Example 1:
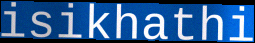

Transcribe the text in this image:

isikhathi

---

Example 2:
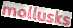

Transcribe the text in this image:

mollusks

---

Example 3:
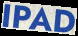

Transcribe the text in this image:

IPAD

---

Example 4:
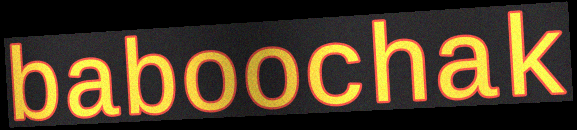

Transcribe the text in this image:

baboochak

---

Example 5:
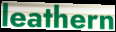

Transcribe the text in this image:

leathern